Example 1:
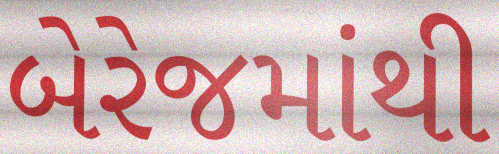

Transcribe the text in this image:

બેરેજમાંથી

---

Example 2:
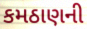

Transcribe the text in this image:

કમઠાણની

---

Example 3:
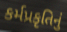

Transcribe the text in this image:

કર્મપ્રકૃતિનું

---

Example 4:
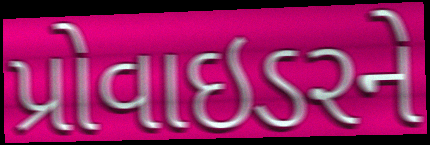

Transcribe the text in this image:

પ્રોવાઇડરને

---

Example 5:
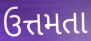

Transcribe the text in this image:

ઉત્તમતા